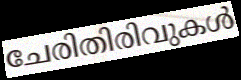
ചേരിതിരിവുകൾ